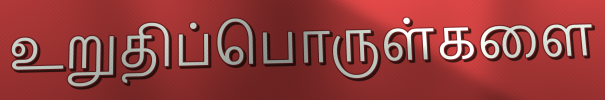
உறுதிப்பொருள்களை